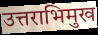
उत्तराभिमुख